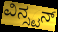
ವಿನ್ಸ್ಟನ್